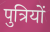
पुत्रियों